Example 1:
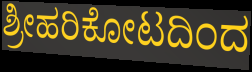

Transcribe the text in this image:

ಶ್ರೀಹರಿಕೋಟದಿಂದ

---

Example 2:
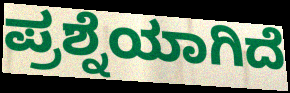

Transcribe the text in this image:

ಪ್ರಶ್ನೆಯಾಗಿದೆ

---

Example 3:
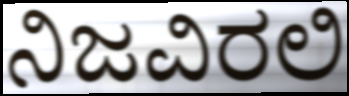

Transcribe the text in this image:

ನಿಜವಿರಲಿ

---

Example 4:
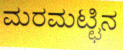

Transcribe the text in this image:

ಮರಮಟ್ಟಿನ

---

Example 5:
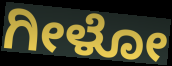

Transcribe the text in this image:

ಗೀಳೋ